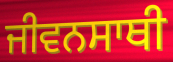
ਜੀਵਨਸਾਥੀ